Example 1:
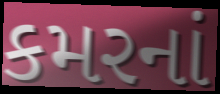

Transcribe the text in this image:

કમરનાં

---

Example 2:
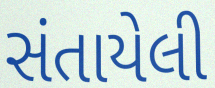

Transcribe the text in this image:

સંતાયેલી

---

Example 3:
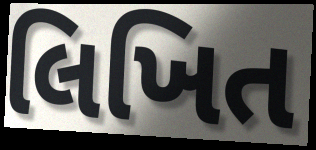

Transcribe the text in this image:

લિખિત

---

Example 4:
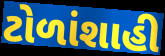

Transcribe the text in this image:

ટોળાંશાહી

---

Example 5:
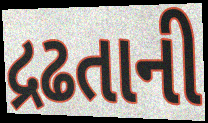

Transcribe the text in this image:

દ્રઢતાની